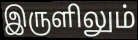
இருளிலும்